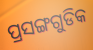
ପ୍ରସଙ୍ଗଗୁଡିକ